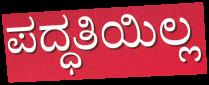
ಪದ್ಧತಿಯಿಲ್ಲ